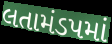
લતામંડપમાં